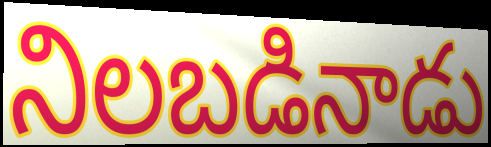
నిలబడినాడు